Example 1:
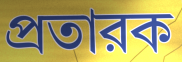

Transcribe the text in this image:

প্রতারক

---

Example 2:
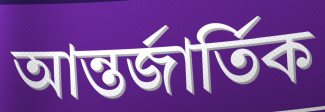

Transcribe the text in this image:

আন্তর্জার্তিক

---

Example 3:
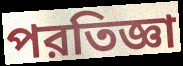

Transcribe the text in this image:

পরতিজ্ঞা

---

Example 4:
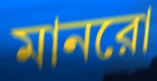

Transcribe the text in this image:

মানরো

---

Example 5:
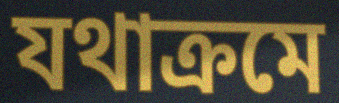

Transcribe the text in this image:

যথাক্রমে